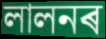
লালনৰ